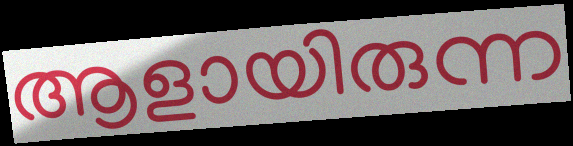
ആളായിരുന്ന